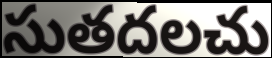
సుతదలచు